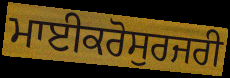
ਮਾਈਕਰੋਸੁਰਜਰੀ